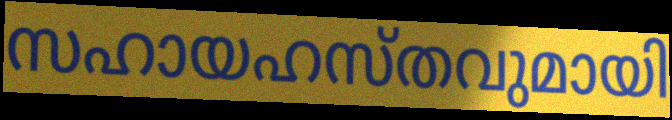
സഹായഹസ്തവുമായി